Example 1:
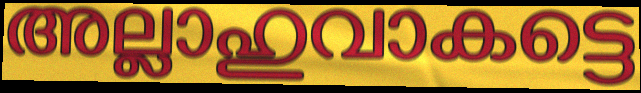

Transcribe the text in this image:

അല്ലാഹുവാകട്ടെ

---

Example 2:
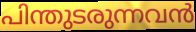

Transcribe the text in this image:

പിന്തുടരുന്നവൻ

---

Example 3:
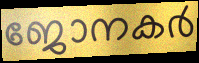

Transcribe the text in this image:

ജോനകർ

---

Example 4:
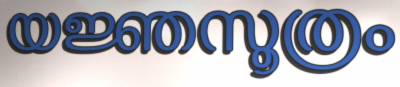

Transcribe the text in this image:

യജ്ഞസൂത്രം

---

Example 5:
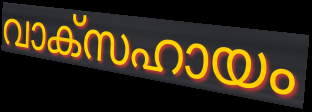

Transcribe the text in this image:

വാക്സഹായം